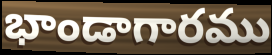
భాండాగారము